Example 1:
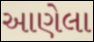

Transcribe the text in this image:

આણેલા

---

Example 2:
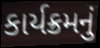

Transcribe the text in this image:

કાર્યક્રમનું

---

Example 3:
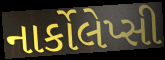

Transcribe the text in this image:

નાર્કોલેપ્સી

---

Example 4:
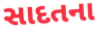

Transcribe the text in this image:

સાદતના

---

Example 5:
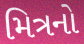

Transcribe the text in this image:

મિત્રનો